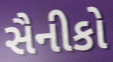
સૈનીકો